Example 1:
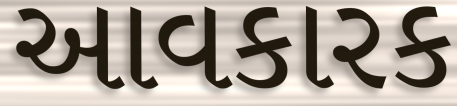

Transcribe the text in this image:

આવકારક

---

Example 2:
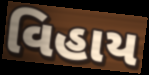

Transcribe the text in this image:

વિહાય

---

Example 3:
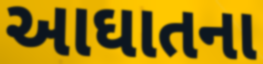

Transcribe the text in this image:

આઘાતના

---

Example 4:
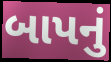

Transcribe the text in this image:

બાપનું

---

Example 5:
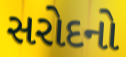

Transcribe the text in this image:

સરોદનો